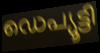
ഡെപ്യൂട്ടി